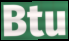
Btu